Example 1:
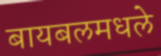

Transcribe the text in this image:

बायबलमधले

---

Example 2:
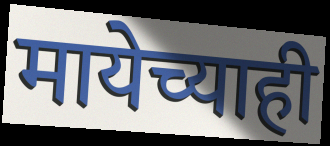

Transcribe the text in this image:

मायेच्याही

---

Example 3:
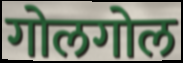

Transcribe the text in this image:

गोलगोल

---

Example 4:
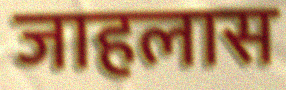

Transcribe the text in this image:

जाहलास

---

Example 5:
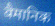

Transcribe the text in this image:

वैमानिक